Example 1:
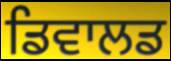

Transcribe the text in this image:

ਡਿਵਾਲਡ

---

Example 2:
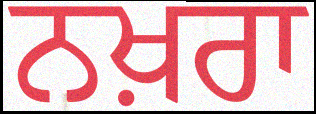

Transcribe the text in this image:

ਨਖ਼ਰਾ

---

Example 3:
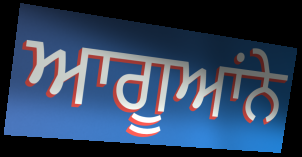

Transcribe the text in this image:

ਆਗੂਆਂਨੇ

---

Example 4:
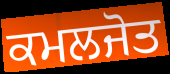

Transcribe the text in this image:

ਕਮਲਜੋਤ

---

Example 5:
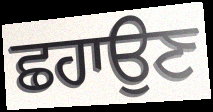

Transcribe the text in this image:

ਛਹਾਉਣ